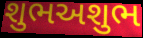
શુભઅશુભ